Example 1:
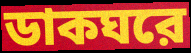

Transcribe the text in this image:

ডাকঘরে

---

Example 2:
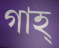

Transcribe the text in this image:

গাহ্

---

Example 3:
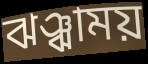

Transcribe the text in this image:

ঝঞ্ঝাময়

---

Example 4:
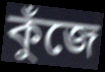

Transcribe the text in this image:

কুঁজে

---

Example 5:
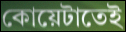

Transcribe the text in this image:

কোয়েটাতেই